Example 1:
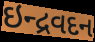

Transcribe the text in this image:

ઇન્દ્રવદન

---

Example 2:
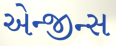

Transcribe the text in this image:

એન્જીન્સ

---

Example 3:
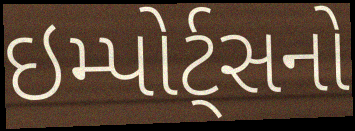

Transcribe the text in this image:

ઇમ્પોર્ટ્સનો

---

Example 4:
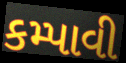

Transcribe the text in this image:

કમ્પાવી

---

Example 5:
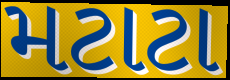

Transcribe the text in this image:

મટાટા